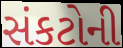
સંકટોની